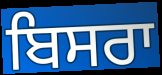
ਬਿਸਰਾ